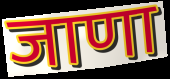
जाणा